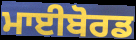
ਮਾਈਬੋਰਡ